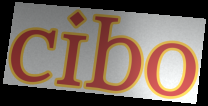
cibo